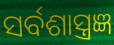
ସର୍ବଶାସ୍ତ୍ରଜ୍ଞ